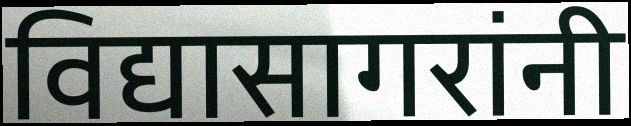
विद्यासागरांनी